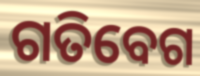
ଗତିବେଗ